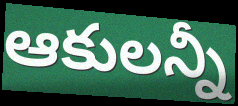
ఆకులన్నీ